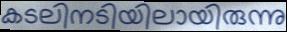
കടലിനടിയിലായിരുന്നു